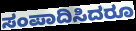
ಸಂಪಾದಿಸಿದರೂ